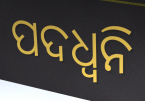
ପଦଧ୍ୱନି